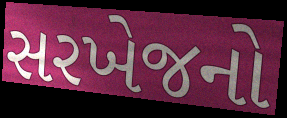
સરખેજનો